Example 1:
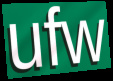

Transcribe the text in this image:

ufw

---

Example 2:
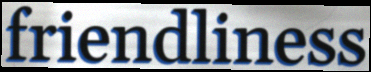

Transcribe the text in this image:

friendliness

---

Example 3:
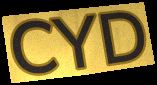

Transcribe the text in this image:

CYD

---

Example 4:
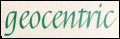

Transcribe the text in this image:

geocentric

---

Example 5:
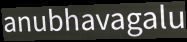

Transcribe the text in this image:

anubhavagalu